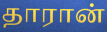
தாரான்